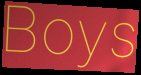
Boys